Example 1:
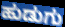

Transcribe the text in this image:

ಹುಡುಗು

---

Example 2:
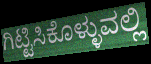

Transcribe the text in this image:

ಗಿಟ್ಟಿಸಿಕೊಳ್ಳುವಲ್ಲಿ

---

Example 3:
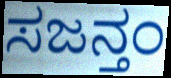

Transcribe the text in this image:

ಸಜನ್ತಂ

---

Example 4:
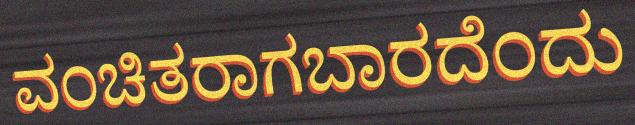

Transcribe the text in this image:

ವಂಚಿತರಾಗಬಾರದೆಂದು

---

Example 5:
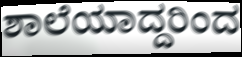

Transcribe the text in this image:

ಶಾಲೆಯಾದ್ದರಿಂದ